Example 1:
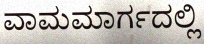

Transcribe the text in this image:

ವಾಮಮಾರ್ಗದಲ್ಲಿ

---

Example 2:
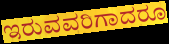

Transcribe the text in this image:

ಇರುವವರಿಗಾದರೂ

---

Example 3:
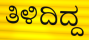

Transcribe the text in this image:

ತಿಳಿದಿದ್ದ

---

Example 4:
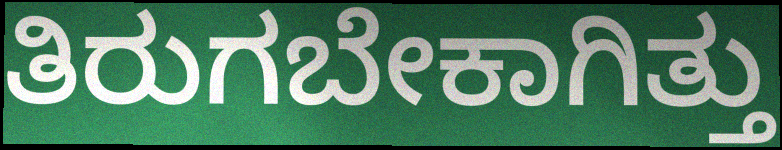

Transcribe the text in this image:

ತಿರುಗಬೇಕಾಗಿತ್ತು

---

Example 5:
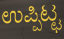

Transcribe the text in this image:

ಉಪ್ಪಿಟ್ಟ